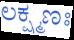
ಲಕ್ಷ್ಮಣಃ